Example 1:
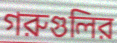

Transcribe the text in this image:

গরুগুলির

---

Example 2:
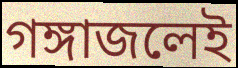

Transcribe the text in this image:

গঙ্গাজলেই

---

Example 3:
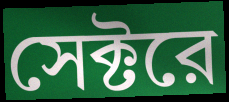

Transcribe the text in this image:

সেক্টরে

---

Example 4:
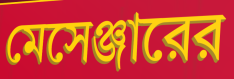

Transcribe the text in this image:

মেসেঞ্জারের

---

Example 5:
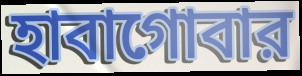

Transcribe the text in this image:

হাবাগোবার